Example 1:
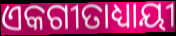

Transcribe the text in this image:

ଏକଗୀତାଧ୍ୟାୟୀ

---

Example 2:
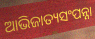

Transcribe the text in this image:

ଆଭିଜାତ୍ୟସଂପନ୍ନା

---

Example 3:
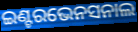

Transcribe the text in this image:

ଇଣ୍ଟରଭେନସନାଲ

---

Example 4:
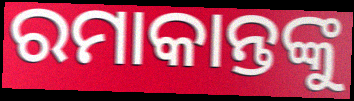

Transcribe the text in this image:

ରମାକାନ୍ତଙ୍କୁ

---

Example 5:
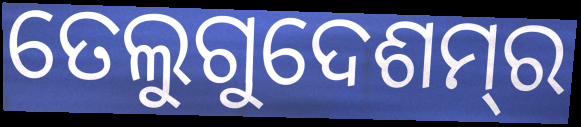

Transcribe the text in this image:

ତେଲୁଗୁଦେଶମ୍‌ର